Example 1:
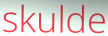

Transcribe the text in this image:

skulde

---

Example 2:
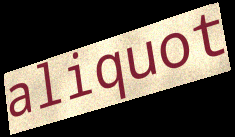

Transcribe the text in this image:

aliquot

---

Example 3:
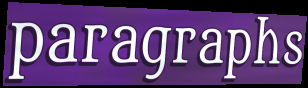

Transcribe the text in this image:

paragraphs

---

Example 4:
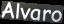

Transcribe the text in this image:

Alvaro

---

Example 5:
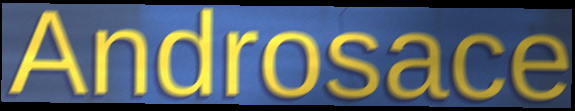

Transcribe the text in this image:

Androsace